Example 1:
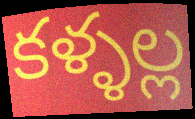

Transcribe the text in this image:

కళ్ళల్ల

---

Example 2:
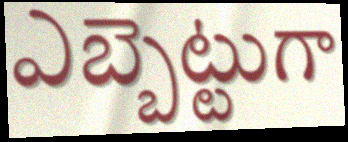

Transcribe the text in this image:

ఎబ్బెట్టుగా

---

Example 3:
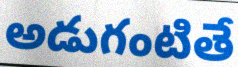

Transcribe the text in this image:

అడుగంటితే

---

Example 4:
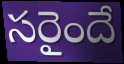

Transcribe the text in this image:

సరైందే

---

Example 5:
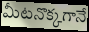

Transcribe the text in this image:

మీటనొక్కగానే